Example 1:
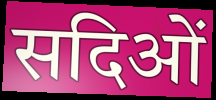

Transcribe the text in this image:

सदिओं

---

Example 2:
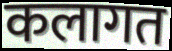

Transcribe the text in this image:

कलागत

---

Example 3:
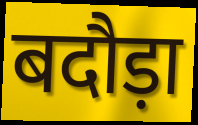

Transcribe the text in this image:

बदौड़ा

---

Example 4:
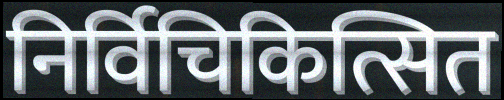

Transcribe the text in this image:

निर्विचिकित्सित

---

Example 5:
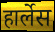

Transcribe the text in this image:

हार्लेस